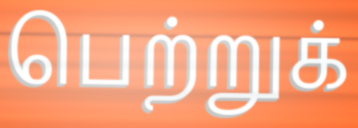
பெற்றுக்